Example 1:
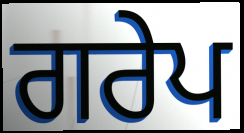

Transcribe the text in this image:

ਗਰੇਪ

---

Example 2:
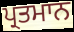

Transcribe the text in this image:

ਪ੍ਰਤਮਾਨ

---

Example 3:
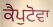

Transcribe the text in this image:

ਕੈਪੁਟੋਵਾ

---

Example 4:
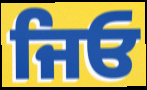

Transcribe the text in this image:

ਜਿਓ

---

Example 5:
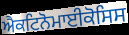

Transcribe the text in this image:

ਐਕਟਿਨੋਮਾਈਕੋਸਿਸ